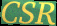
CSR